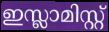
ഇസ്ലാമിസ്റ്റ്